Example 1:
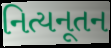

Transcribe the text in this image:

નિત્યનૂતન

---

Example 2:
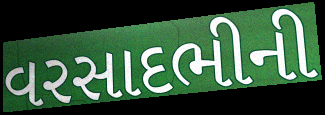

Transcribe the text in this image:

વરસાદભીની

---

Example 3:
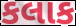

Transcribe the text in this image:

કલાક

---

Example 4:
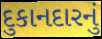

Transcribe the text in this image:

દુકાનદારનું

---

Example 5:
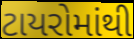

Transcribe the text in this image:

ટાયરોમાંથી